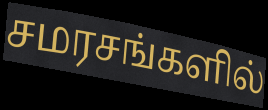
சமரசங்களில்